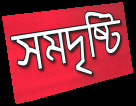
সমদৃষ্টি